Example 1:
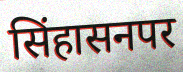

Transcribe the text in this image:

सिंहासनपर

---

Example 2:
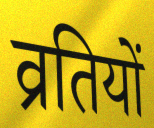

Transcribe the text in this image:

व्रतियों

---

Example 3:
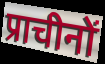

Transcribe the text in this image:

प्राचीनों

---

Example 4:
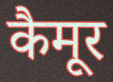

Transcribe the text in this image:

कैमूर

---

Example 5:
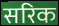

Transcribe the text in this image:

सरिक